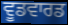
ਵੂਡਵਾਰਡ